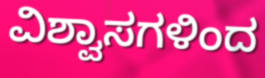
ವಿಶ್ವಾಸಗಳಿಂದ